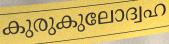
കുരുകുലോദ്വഹ